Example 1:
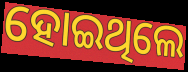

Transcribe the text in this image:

ହୋଇଥିଲେ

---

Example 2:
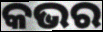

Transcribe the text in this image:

କଭର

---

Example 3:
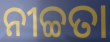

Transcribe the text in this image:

ନୀଚ୍ଚତା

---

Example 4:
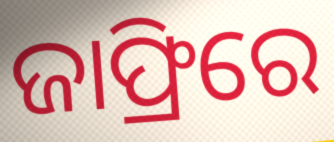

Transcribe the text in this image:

ଜାଫ୍ରିରେ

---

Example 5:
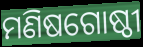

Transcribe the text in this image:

ମଣିଷଗୋଷ୍ଠୀ